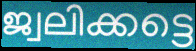
ജ്വലിക്കട്ടെ